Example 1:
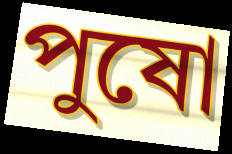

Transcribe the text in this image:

পুষো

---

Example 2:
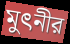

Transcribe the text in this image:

মুৎনীর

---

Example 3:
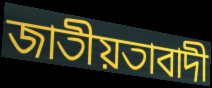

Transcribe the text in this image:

জাতীয়তাবাদী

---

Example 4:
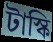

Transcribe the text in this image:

টাস্কি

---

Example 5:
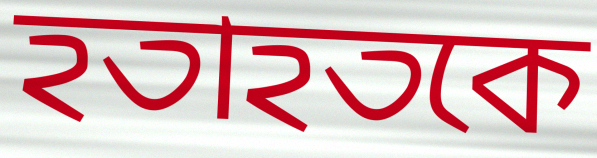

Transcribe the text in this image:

হতাহতকে